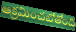
ఆక్రమించబోతోంది